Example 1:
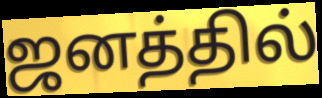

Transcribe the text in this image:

ஜனத்தில்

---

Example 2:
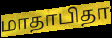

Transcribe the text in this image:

மாதாபிதா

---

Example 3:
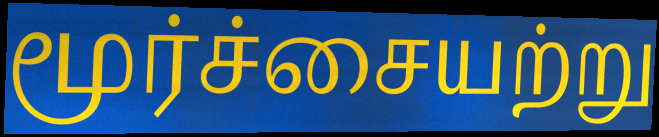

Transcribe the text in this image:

மூர்ச்சையற்று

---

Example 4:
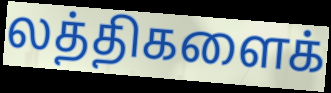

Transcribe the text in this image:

லத்திகளைக்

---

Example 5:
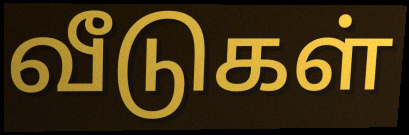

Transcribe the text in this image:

வீடுகள்